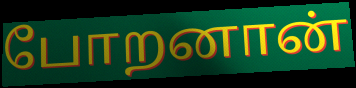
போறனான்